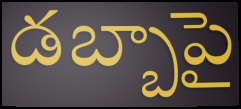
డబ్బాపై